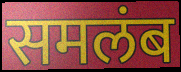
समलंब